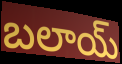
బలాయ్